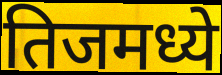
तिजमध्ये